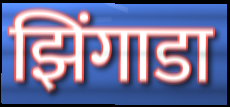
झिंगाडा